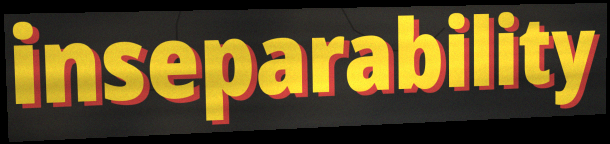
inseparability